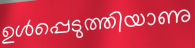
ഉൾപ്പെടുത്തിയാണു